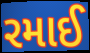
રમાઈ